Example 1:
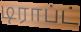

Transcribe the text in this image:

டிராப்ட்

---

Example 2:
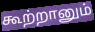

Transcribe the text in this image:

கூற்றானும்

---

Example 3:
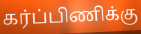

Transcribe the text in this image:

கர்ப்பிணிக்கு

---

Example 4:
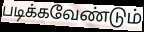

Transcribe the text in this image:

படிக்கவேண்டும்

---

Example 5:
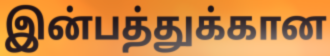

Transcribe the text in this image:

இன்பத்துக்கான